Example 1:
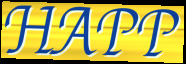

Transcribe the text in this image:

HAPP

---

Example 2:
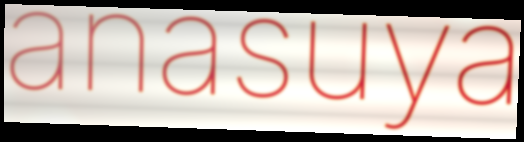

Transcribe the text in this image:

anasuya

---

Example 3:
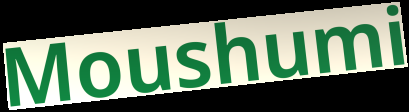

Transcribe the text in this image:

Moushumi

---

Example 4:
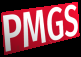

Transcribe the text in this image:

PMGS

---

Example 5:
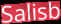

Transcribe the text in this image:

Salisb